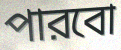
পারবো